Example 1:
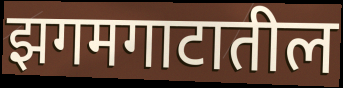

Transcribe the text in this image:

झगमगाटातील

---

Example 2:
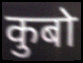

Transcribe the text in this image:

कुबो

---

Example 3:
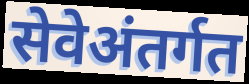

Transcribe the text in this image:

सेवेअंतर्गत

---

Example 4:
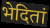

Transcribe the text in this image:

भेदितां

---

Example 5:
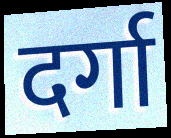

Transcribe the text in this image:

दर्गा